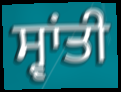
ਸ੍ਵਾਂਤੀ